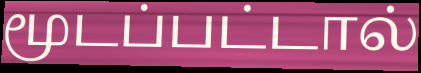
மூடப்பட்டால்